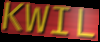
KWIL